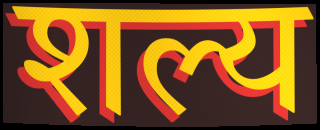
शल्य